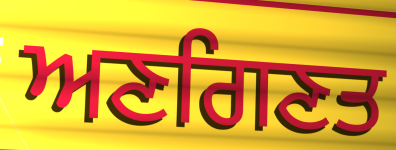
ਅਣਗਿਣਤ